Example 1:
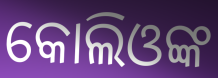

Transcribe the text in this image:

କୋଲିଓଙ୍କ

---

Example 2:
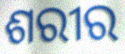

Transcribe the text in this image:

ଶରୀର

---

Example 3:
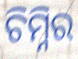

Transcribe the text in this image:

ଚିମ୍ନିର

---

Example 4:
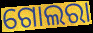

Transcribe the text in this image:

ଗୋଲରା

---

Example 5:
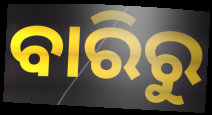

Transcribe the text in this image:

ବାରିରୁ